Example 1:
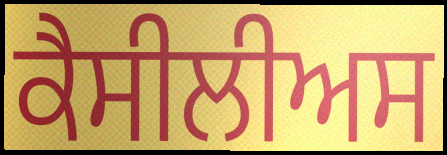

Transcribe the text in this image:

ਕੈਸੀਲੀਅਸ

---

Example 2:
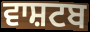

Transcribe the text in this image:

ਵਾਸ਼ਟਬ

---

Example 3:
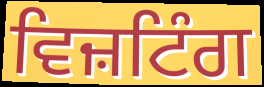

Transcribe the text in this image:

ਵਿਜ਼ਟਿੰਗ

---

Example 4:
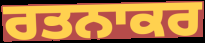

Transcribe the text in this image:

ਰਤਨਾਕਰ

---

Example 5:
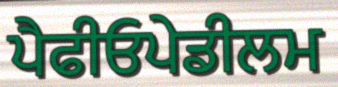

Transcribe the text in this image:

ਪੈਫੀਓਪੇਡੀਲਮ